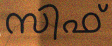
സിഫ്